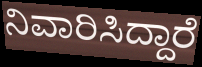
ನಿವಾರಿಸಿದ್ದಾರೆ